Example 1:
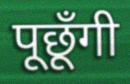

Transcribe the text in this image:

पूछूँगी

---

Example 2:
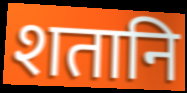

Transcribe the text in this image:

शतानि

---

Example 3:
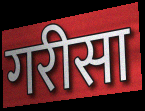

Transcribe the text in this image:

गरीसा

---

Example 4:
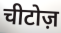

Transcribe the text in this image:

चीटोज़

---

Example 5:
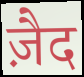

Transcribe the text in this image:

ज़ैद